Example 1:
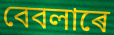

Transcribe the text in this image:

বেবলাৰে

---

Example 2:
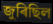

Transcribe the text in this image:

জুৰিছিল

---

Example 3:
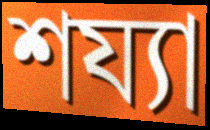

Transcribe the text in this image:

শয্যা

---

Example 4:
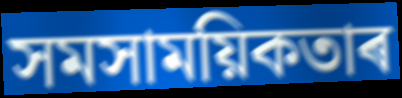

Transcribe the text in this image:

সমসাময়িকতাৰ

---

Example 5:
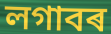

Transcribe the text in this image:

লগাবৰ